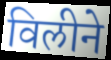
विलीने